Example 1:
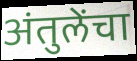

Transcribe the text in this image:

अंतुलेंचा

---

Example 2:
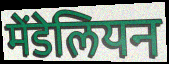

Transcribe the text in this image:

मेंडेलियन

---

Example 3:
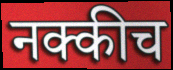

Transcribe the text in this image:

नक्कीच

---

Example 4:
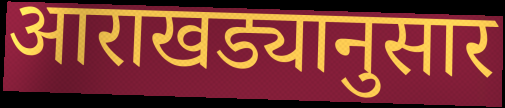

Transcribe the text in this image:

आराखड्यानुसार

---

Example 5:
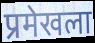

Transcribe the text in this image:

प्रमेखला